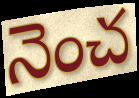
నెంచ